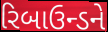
રિબાઉન્ડને